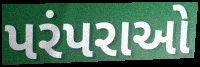
પરંપરાઓ